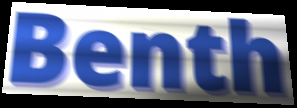
Benth